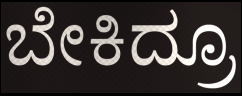
ಬೇಕಿದ್ರೂ